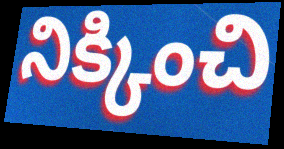
నిక్కించి